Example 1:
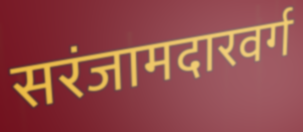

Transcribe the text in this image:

सरंजामदारवर्ग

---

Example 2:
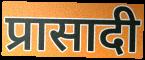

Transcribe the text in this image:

प्रासादी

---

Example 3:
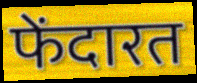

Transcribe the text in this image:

फेंदारत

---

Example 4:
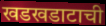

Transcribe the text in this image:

खडखडाटाची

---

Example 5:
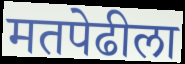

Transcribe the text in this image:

मतपेढीला